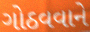
ગોઠવવાને